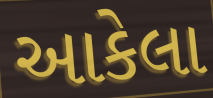
આકેલા